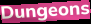
Dungeons